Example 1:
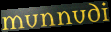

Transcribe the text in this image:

munnudi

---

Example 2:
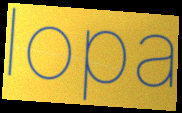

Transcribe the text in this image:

lopa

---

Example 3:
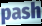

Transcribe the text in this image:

pash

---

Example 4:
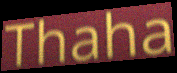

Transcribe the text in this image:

Thaha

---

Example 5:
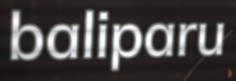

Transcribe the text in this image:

baliparu